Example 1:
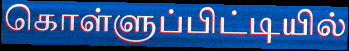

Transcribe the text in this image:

கொள்ளுப்பிட்டியில்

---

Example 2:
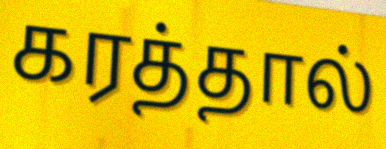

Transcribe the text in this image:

கரத்தால்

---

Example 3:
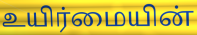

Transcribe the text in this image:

உயிர்மையின்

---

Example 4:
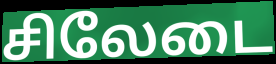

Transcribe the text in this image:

சிலேடை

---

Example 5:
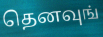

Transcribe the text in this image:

தெனவுங்